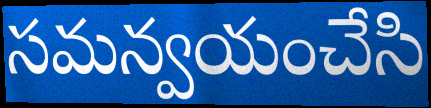
సమన్వయంచేసి